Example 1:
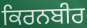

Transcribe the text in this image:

ਕਿਰਨਬੀਰ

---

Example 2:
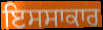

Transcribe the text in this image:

ਇਸਸਾਕਾਰ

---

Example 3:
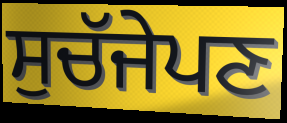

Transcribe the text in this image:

ਸੁਚੱਜੇਪਣ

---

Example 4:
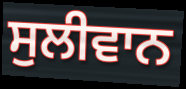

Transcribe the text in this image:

ਸੁਲੀਵਾਨ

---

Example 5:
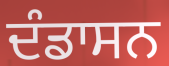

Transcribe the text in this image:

ਦੰਡਾਸਨ